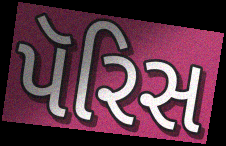
પૅરિસ